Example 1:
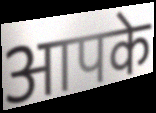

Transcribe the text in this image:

आपके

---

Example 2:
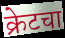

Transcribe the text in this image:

क्रेटचा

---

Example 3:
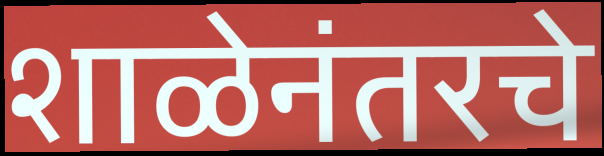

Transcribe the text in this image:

शाळेनंतरचे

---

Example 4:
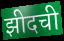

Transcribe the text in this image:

झीदची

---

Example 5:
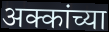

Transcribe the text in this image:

अक्कांच्या